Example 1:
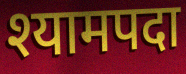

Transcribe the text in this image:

श्यामपदा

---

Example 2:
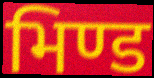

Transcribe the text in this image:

भिण्ड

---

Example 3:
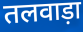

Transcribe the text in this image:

तलवाड़ा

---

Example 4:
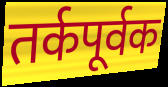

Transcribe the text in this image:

तर्कपूर्वक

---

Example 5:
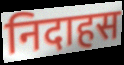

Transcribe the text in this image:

निदाहस